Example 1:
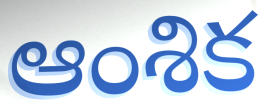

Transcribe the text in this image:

ఆంశిక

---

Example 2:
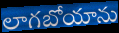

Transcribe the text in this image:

లాగబోయాను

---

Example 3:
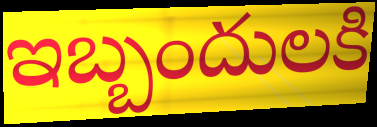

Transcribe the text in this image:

ఇబ్బందులకి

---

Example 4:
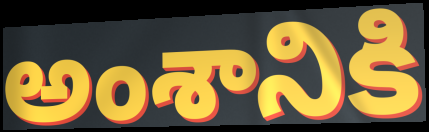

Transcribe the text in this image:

అంశానికి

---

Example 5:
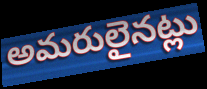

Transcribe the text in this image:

అమరులైనట్లు